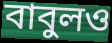
বাবুলও